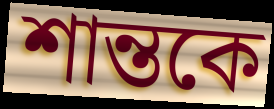
শান্তকে